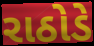
રાઠોડે